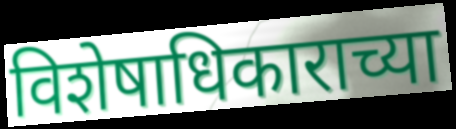
विशेषाधिकाराच्या